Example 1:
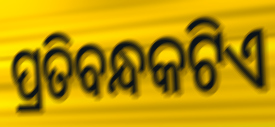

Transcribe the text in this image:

ପ୍ରତିବନ୍ଧକଟିଏ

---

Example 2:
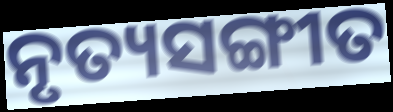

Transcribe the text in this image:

ନୃତ୍ୟସଙ୍ଗୀତ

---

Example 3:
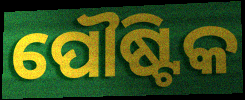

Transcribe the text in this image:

ପୌଷ୍ଟିକ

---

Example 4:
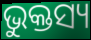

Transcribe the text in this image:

ଭୁକ୍ତସ୍ୟ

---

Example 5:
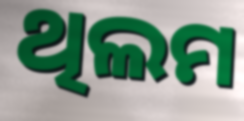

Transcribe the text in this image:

ଥିଲମ